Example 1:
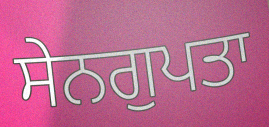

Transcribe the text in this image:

ਸੇਨਗੁਪਤਾ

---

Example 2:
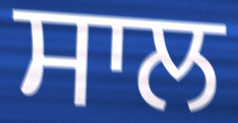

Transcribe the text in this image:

ਸਾਲ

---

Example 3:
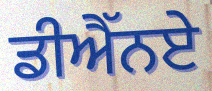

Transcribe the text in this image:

ਡੀਐੱਨਏ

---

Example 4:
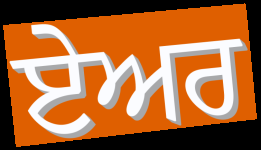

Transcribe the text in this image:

ਏਅਰ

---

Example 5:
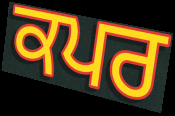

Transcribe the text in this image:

ਕਪਰ